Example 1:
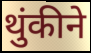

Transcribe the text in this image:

थुंकीने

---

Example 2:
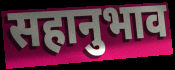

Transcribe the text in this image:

सहानुभाव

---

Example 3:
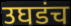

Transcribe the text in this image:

उघडंच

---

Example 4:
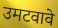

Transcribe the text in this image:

उमटवावे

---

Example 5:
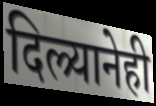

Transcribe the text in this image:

दिल्यानेही